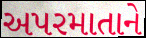
અપરમાતાને